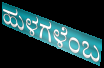
ಹುಳಗಳೆಂಬ